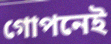
গোপনেই